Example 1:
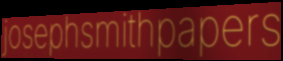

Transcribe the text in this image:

josephsmithpapers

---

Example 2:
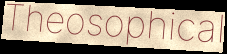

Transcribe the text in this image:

Theosophical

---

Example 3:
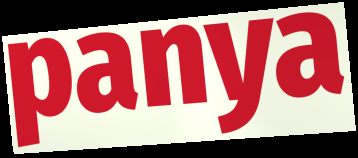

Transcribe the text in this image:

panya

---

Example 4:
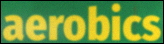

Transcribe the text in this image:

aerobics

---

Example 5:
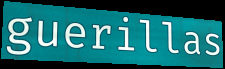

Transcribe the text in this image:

guerillas